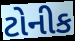
ટોનીક